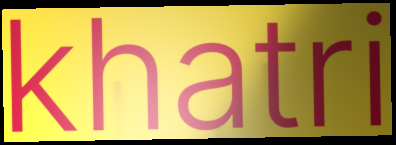
khatri